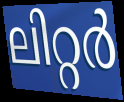
ലിറ്റർ